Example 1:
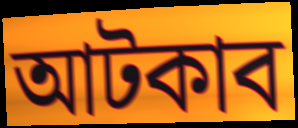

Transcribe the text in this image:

আটকাব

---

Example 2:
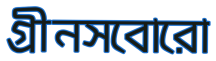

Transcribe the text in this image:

গ্রীনসবোরো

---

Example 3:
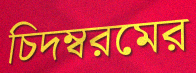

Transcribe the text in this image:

চিদম্বরমের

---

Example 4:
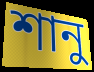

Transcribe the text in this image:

শানু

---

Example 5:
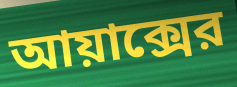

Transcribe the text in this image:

আয়াক্সের